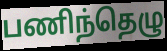
பணிந்தெழு